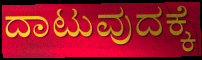
ದಾಟುವುದಕ್ಕೆ